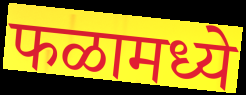
फळामध्ये